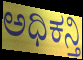
ಅಧಿಕನ್ತಿ